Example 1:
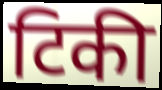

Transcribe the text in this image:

टिकी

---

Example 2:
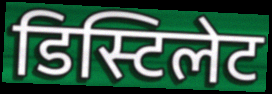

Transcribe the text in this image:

डिस्टिलेट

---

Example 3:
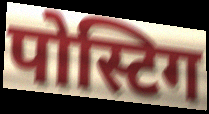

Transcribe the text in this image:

पोस्टिग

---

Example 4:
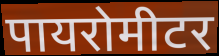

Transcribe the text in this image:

पायरोमीटर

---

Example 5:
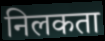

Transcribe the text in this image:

निलकता